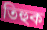
তিহুক